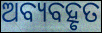
ଅବ୍ୟବହୃତ